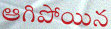
ఆగిపోయిన